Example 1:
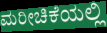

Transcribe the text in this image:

ಮರೀಚಿಕೆಯಲ್ಲಿ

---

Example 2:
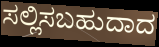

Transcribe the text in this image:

ಸಲ್ಲಿಸಬಹುದಾದ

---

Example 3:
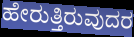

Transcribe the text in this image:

ಹೇರುತ್ತಿರುವುದರ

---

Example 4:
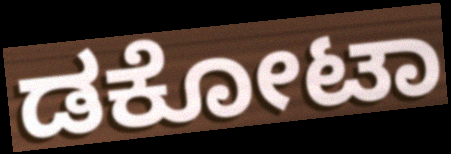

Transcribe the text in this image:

ಡಕೋಟಾ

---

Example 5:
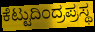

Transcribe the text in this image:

ಕೆಟ್ಟುದಿಂದ್ರಪ್ರಸ್ಥ